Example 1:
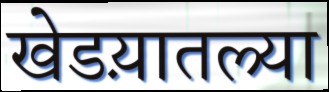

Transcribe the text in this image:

खेडय़ातल्या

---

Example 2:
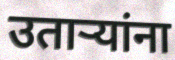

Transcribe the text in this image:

उताऱ्यांना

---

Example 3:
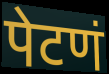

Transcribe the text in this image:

पेटणं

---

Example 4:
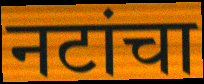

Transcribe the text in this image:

नटांचा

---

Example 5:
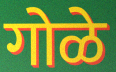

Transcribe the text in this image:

गोळे